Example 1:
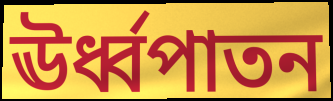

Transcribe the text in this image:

ঊর্ধ্বপাতন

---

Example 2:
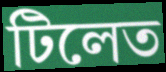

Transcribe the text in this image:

টিলেত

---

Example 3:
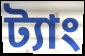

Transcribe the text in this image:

ট্যাং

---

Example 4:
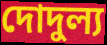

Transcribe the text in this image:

দোদুল্য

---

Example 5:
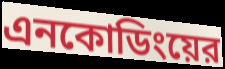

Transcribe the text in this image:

এনকোডিংয়ের